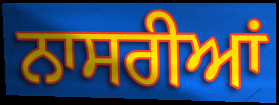
ਨਾਸਰੀਆਂ